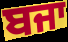
ਬਜਾ